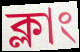
ক্লাং